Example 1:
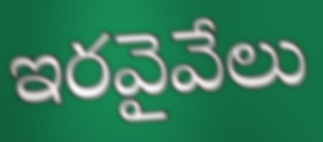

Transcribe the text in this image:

ఇరవైవేలు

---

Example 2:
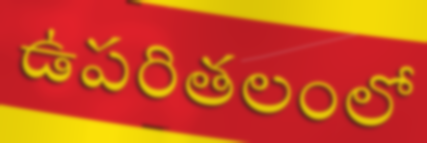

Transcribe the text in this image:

ఉపరితలంలో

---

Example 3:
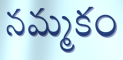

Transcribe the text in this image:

నమ్మకం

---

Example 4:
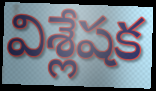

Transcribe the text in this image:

విశ్లేషక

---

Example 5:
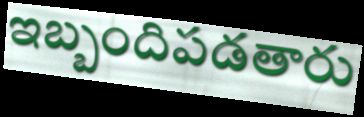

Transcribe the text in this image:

ఇబ్బందిపడతారు